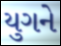
યુગને